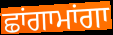
ਛਾਂਗਾਮਾਂਗਾ